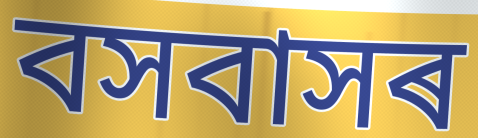
বসবাসৰ